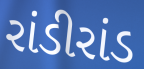
રાંડીરાંડ